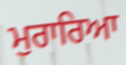
ਮੁਰਾਰਿਆ